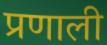
प्रणाली